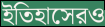
ইতিহাসেরও